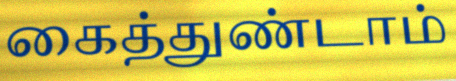
கைத்துண்டாம்